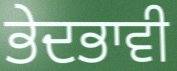
ਭੇਦਭਾਵੀ